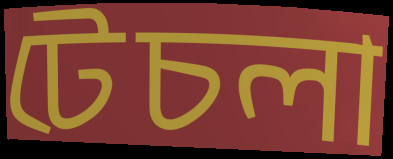
টেচলা